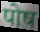
पोष